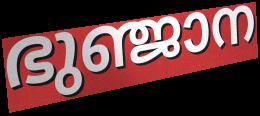
ഭുഞ്ജാന